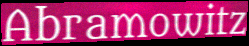
Abramowitz